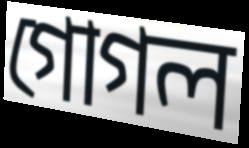
গোগল